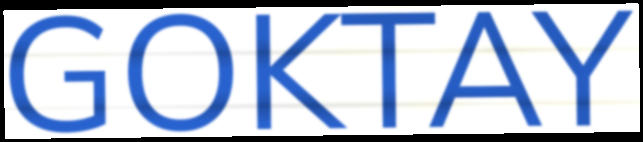
GOKTAY